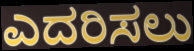
ಎದರಿಸಲು